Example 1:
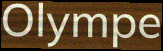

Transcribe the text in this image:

Olympe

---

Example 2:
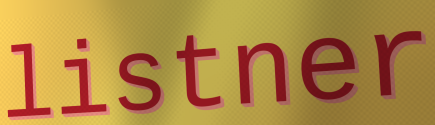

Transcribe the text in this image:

listner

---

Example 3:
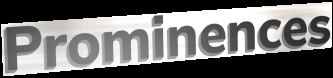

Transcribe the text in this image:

Prominences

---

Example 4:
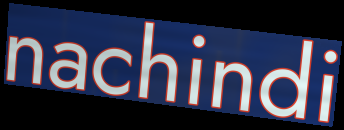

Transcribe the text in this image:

nachindi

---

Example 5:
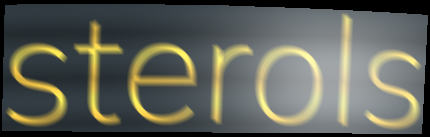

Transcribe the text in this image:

sterols